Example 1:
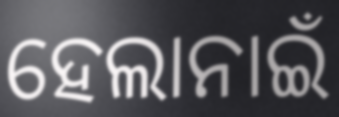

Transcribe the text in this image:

ହେଲାନାଇଁ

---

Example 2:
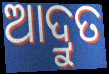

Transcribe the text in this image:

ଆଦ୍ରୁତ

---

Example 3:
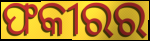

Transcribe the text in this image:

ଫକୀରର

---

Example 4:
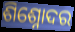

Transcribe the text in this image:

ଶିଶ୍ନୋଦର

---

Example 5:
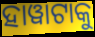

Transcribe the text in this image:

ହାୱାଟାକୁ